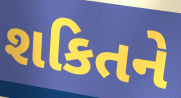
શકિતને